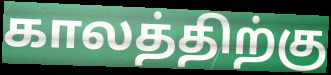
காலத்திற்கு